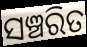
ସଞ୍ଚରିତ